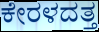
ಕೇರಳದತ್ತ